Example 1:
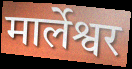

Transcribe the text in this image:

मार्लेश्वर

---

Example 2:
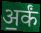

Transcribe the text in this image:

अ॒र्कं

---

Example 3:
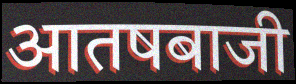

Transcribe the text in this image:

आतषबाजी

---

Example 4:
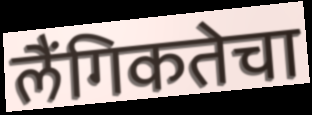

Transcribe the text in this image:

लैंगिकतेचा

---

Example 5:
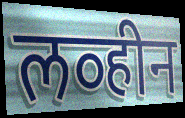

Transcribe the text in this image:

लव्हीन